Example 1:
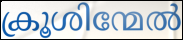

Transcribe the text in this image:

ക്രൂശിന്മേൽ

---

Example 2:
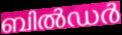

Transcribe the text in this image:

ബിൽഡർ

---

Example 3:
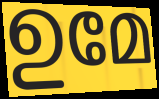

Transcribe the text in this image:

ഉമേ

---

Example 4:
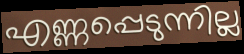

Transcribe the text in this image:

എണ്ണപ്പെടുന്നില്ല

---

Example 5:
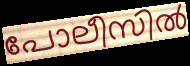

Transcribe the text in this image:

പോലീസിൽ